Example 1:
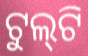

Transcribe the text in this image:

ଟୁଲ୍‌ଟି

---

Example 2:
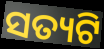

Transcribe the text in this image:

ସତ୍ୟଟି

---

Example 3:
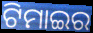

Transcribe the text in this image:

ଟିମାଇର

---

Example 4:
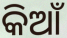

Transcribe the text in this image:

କିଆଁ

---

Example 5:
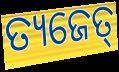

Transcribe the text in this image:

ତ୍ଯଜେତ୍